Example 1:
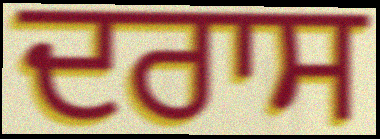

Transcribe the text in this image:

ਦਰਾਸ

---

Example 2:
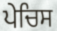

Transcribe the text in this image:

ਪੇਚਿਸ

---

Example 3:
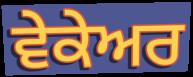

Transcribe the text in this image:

ਵੇਕੇਅਰ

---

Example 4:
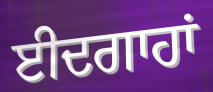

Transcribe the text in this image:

ਈਦਗਾਹਾਂ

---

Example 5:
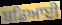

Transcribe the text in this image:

ਬਡਿਆਈ